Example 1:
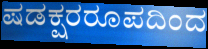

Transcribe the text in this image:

ಷಡಕ್ಷರರೂಪದಿಂದ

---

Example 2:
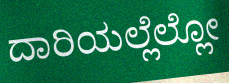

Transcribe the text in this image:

ದಾರಿಯಲ್ಲೆಲ್ಲೋ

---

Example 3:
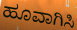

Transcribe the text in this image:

ಹೂವಾಗಿಸಿ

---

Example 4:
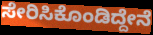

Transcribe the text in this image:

ಸೇರಿಸಿಕೊಂಡಿದ್ದೇನೆ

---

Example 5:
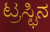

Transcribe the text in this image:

ಟ್ರಸ್ಟಿನ